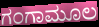
ಗಂಗಾಮೂಲ